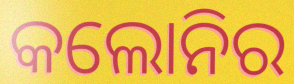
କଲୋନିର